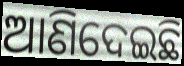
ଆଣିଦେଇଛି